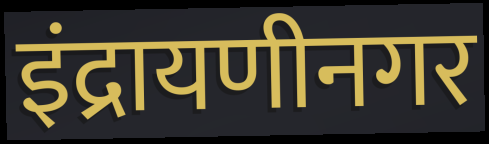
इंद्रायणीनगर